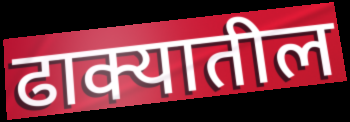
ढाक्यातील